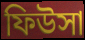
ফিউসা